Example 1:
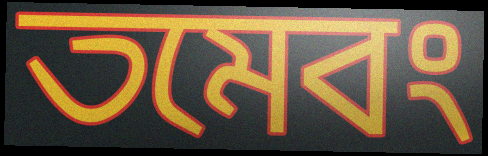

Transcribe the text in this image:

তমেবং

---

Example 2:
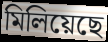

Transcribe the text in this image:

মিলিয়েছে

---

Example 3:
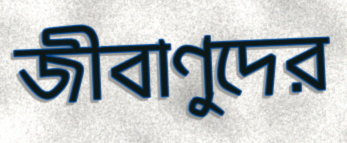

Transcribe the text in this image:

জীবাণুদের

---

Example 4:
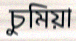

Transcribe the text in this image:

চুমিয়া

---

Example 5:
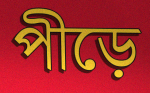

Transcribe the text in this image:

পীড়ে